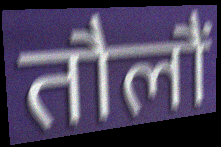
तौलौं